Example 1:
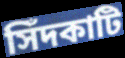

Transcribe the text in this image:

সিঁদকাটি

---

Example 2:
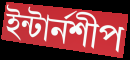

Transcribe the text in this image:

ইন্টার্নশীপ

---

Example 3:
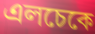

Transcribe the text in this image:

এলচেকে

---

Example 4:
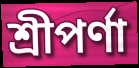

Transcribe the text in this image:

শ্রীপর্ণা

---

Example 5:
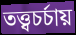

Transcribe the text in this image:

তত্ত্বচর্চায়